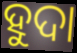
ହୁଦା